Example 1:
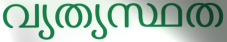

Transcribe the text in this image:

വ്യത്യസ്ഥത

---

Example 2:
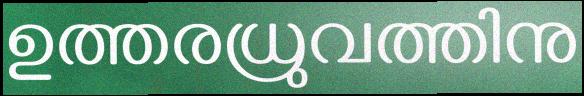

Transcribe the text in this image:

ഉത്തരധ്രുവത്തിനു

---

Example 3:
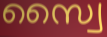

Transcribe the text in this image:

സ്വൈ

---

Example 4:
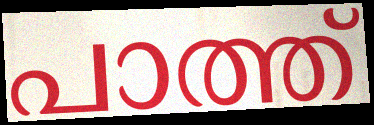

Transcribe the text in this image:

പാത്ത്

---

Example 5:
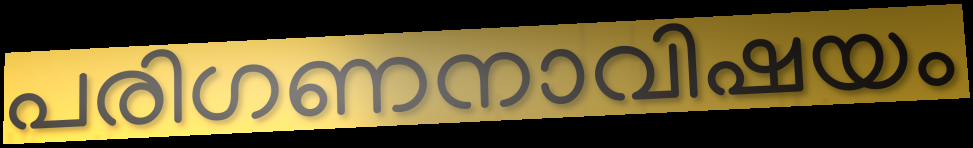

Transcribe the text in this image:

പരിഗണനാവിഷയം